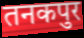
तनकपुर